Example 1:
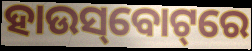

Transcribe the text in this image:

ହାଉସ୍‌ବୋଟ୍‌ରେ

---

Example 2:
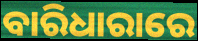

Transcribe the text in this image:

ବାରିଧାରାରେ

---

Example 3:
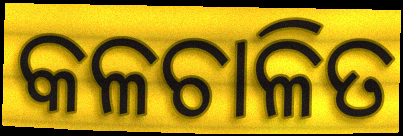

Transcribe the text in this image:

କଳଚାଳିତ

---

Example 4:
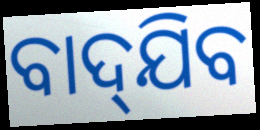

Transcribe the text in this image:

ବାଦ୍‌ଯିବ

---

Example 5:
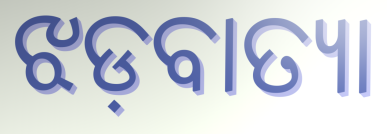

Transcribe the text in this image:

ଝଡ଼ବାତ୍ୟା